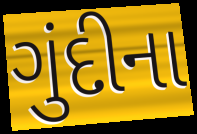
ગુંદીના